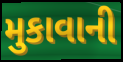
મુકાવાની